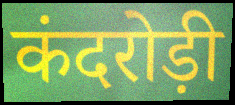
कंदरोड़ी